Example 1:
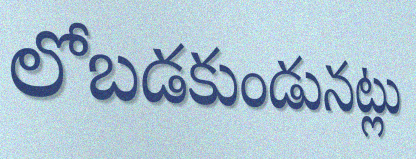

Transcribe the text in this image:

లోబడకుండునట్లు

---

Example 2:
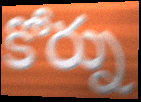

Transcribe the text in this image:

కోర్ను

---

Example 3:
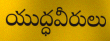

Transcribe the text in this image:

యుద్ధవీరులు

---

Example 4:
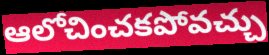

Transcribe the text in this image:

ఆలోచించకపోవచ్చు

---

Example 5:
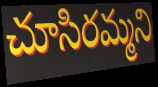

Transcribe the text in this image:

చూసిరమ్మని